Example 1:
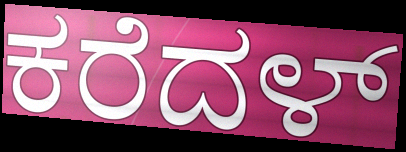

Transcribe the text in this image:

ಕರೆದಳ್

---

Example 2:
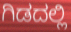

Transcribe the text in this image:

ಗಿಡದಲ್ಲಿ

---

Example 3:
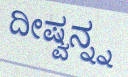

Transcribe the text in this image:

ದೀಷ್ವನ್ನ್ನ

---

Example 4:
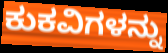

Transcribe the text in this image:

ಕುಕವಿಗಳನ್ನು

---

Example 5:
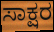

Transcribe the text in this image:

ಸಾಕ್ಷರ